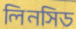
লিনসিড